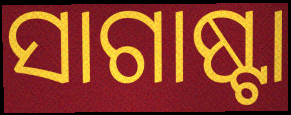
ସାଗାଷ୍ଟା